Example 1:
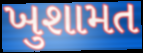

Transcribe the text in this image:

ખુશામત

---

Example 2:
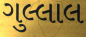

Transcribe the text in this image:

ગુલ્લાલ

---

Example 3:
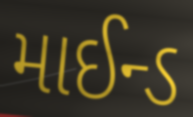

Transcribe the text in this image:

માઈન્ડ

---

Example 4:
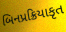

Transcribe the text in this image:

બિનપ્રક્રિયાકૃત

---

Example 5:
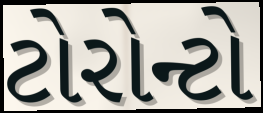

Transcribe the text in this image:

ટોરોન્ટો